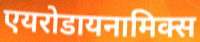
एयरोडायनामिक्स